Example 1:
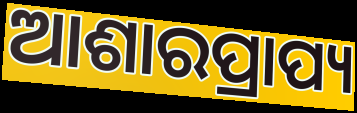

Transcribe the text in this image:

ଆଶାରପ୍ରାପ୍ୟ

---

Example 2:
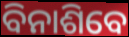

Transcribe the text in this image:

ବିନାଶିବେ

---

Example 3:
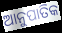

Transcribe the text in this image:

ଆନୁପାତିକ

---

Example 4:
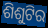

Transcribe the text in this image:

ଶିଶୁଟିର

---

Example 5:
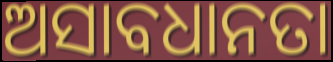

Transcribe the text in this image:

ଅସାବଧାନତା